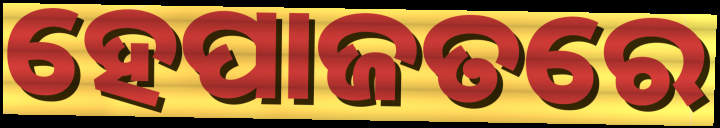
ହେପାଜତରେ